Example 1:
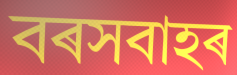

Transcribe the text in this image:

বৰসবাহৰ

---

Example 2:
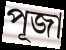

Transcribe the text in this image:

পূজা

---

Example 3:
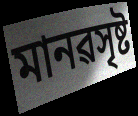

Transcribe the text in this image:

মানৱসৃষ্ট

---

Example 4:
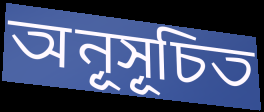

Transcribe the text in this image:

অনূসূচিত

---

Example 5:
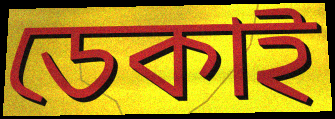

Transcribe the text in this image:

ডেকাই